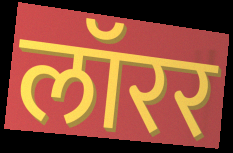
लॉरर